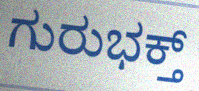
ಗುರುಭಕ್ತ್